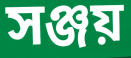
সঞ্জয়